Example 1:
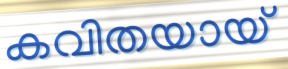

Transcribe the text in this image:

കവിതയായ്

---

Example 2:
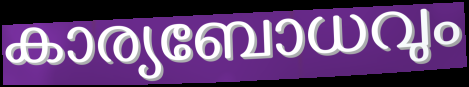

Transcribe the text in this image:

കാര്യബോധവും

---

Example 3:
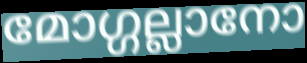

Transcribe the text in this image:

മോഗ്ഗല്ലാനോ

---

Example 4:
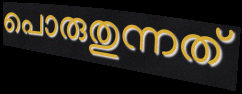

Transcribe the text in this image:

പൊരുതുന്നത്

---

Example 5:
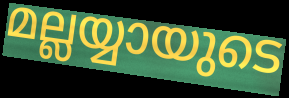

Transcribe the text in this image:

മല്ലയ്യായുടെ